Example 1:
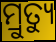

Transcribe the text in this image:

ମ୍ରୁତ୍ୟୁ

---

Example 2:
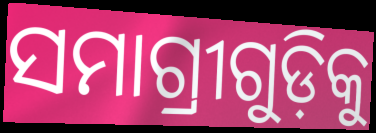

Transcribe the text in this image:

ସମାଗ୍ରୀଗୁଡ଼ିକୁ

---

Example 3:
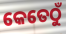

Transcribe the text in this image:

କେତେଠୁଁ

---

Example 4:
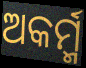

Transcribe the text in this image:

ଅକର୍ମ୍ମ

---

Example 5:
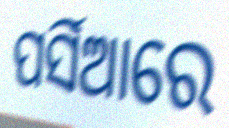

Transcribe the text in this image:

ପର୍ସିଆରେ